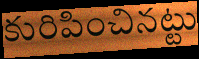
కురిపించినట్టు